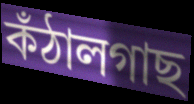
কঁঠালগাছ